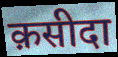
क़सीदा